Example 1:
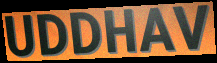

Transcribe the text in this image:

UDDHAV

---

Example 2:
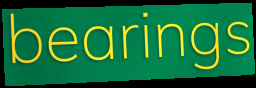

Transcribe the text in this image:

bearings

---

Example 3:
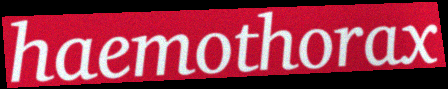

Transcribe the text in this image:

haemothorax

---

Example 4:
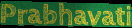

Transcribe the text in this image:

Prabhavati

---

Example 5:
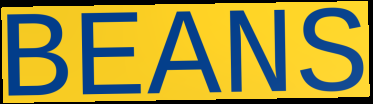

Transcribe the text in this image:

BEANS